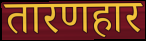
तारणहार